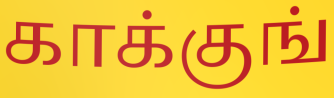
காக்குங்